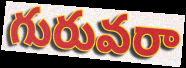
గురువరా